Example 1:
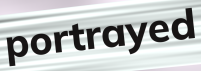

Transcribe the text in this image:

portrayed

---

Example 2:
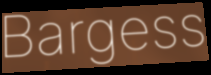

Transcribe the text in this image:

Bargess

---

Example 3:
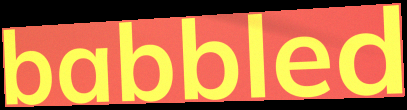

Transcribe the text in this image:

babbled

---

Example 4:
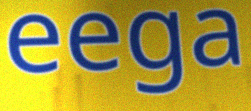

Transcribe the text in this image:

eega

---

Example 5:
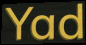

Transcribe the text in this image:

Yad